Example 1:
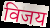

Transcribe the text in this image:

विजय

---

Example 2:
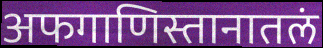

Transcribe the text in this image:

अफगाणिस्तानातलं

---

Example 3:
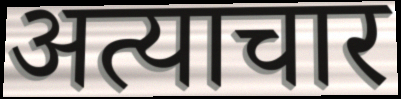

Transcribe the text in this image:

अत्याचार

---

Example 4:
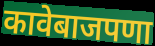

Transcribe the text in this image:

कावेबाजपणा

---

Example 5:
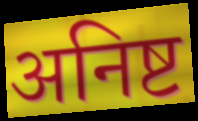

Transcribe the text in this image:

अनिष्ट